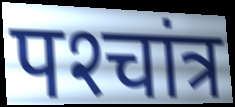
पश्चांत्र